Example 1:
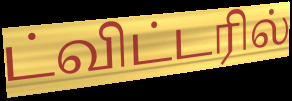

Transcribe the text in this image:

ட்விட்டரில்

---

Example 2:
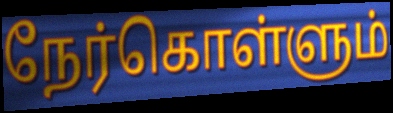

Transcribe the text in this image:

நேர்கொள்ளும்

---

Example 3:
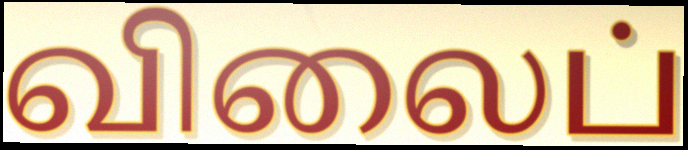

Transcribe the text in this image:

விலைப்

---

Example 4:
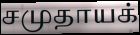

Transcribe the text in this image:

சமுதாயக்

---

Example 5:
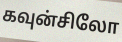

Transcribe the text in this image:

கவுன்சிலோ